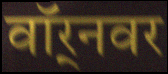
वॉर्नवर